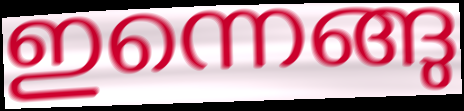
ഇന്നെങ്ങു